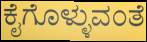
ಕೈಗೊಳ್ಳುವಂತೆ